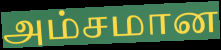
அம்சமான